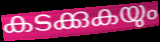
കടക്കുകയും